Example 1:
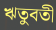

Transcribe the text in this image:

ঋতুবতী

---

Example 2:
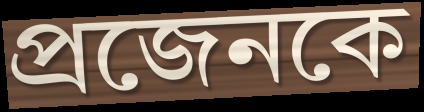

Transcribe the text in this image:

প্রজেনকে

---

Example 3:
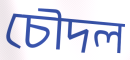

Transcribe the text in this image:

চৌদল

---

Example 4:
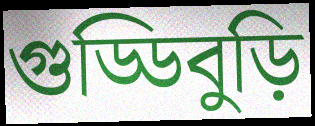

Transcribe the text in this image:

গুড্ডিবুড়ি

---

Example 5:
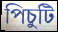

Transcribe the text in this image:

পিচুটি